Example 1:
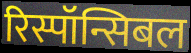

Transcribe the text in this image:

रिस्पॉन्सिबल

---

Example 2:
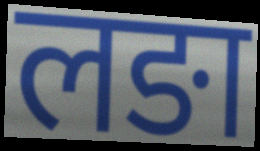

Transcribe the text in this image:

लङा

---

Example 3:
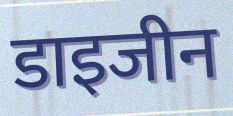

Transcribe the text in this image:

डाइजीन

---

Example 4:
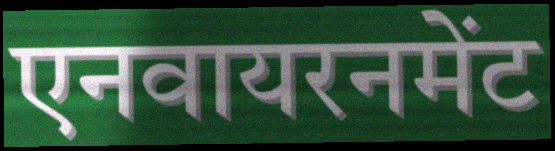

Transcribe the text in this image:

एनवायरनमेंट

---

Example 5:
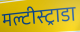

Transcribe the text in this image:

मल्टीस्ट्राडा